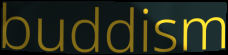
buddism